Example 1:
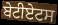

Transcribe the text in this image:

ਬੇਟੀਏਟਸ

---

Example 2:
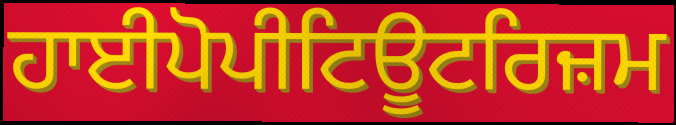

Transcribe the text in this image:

ਹਾਈਪੋਪੀਟਿਊਟਰਿਜ਼ਮ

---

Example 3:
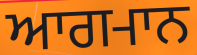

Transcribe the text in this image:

ਆਗ੍ਮਾਨ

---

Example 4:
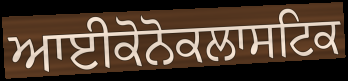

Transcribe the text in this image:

ਆਈਕੋਨੋਕਲਾਸਟਿਕ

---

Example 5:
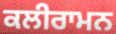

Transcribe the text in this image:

ਕਲੀਰਾਮਨ